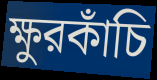
ক্ষুরকাঁচি